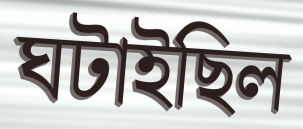
ঘটাইছিল